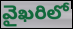
వైఖరిలో